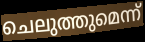
ചെലുത്തുമെന്ന്